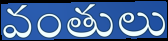
వంతులు